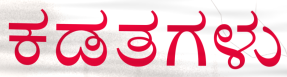
ಕಡತಗಳು